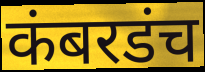
कंबरडंच